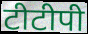
टीटीपी